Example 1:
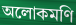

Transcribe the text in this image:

অলোকমণি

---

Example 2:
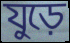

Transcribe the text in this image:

যুড়ে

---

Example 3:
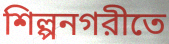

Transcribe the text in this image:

শিল্পনগরীতে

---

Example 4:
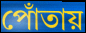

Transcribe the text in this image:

পোঁতায়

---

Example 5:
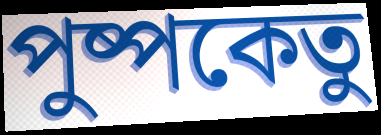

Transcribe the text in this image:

পুষ্পকেতু